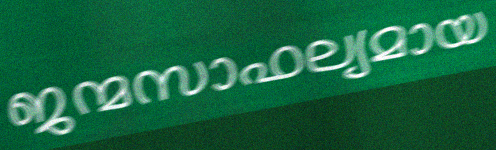
ജന്മസാഫല്യമായ